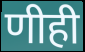
णीही